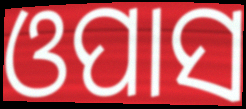
ଓପାସ